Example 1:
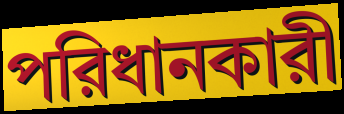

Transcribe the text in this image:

পরিধানকারী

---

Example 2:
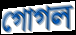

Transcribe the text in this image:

গোগল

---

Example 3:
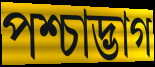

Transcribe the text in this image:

পশ্চাদ্ভাগ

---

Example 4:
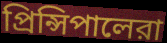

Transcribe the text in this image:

প্রিন্সিপালেরা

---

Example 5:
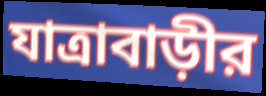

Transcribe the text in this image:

যাত্রাবাড়ীর